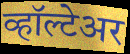
व्हॉल्टेअर